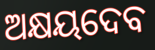
ଅକ୍ଷୟଦେବ